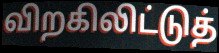
விறகிலிட்டுத்